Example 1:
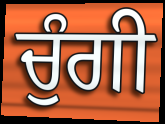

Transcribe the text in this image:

ਚੁੰਗੀ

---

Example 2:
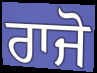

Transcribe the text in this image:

ਰਾਜੋ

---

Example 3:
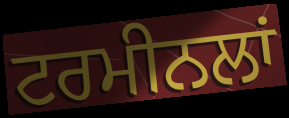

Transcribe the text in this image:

ਟਰਮੀਨਲਾਂ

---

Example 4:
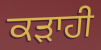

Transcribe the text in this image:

ਕੜਾਹੀ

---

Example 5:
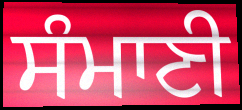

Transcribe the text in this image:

ਸੰਮਾਣੀ